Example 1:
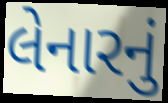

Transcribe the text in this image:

લેનારનું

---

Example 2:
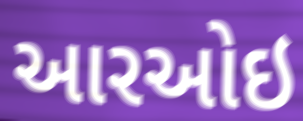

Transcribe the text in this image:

આરઓઇ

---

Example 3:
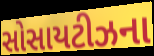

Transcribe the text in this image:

સોસાયટીઝના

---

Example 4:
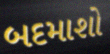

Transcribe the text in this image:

બદમાશો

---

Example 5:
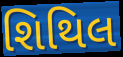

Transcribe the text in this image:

શિથિલ